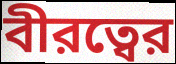
বীরত্বের